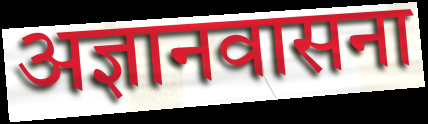
अज्ञानवासना